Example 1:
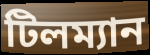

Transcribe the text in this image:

টিলম্যান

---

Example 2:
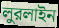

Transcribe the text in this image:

লুরলাইন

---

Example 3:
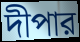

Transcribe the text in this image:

দীপার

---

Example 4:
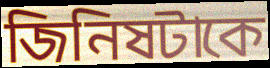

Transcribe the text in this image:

জিনিষটাকে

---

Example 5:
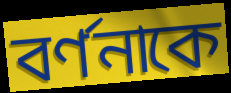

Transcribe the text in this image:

বর্ণনাকে